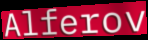
Alferov